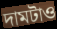
দামটাও